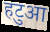
हटुआ